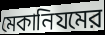
মেকানিযমের